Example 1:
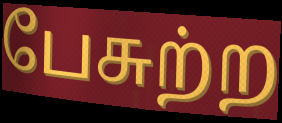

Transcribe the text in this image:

பேசுற்ற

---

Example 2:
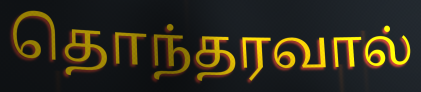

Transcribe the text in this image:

தொந்தரவால்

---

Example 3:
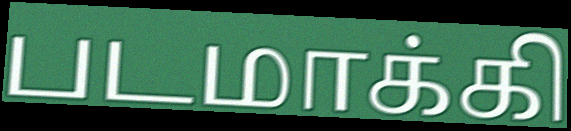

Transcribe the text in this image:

படமாக்கி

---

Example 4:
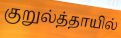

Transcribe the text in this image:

குறுல்த்தாயில்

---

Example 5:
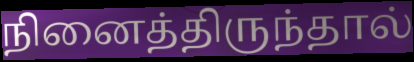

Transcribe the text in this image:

நினைத்திருந்தால்